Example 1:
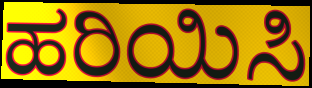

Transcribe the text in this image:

ಹರಿಯಿಸಿ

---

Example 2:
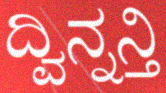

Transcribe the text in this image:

ದ್ವಿನ್ನನ್ತಿ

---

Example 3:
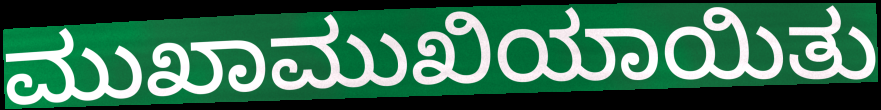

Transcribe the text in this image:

ಮುಖಾಮುಖಿಯಾಯಿತು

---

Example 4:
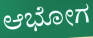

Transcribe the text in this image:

ಆಭೋಗ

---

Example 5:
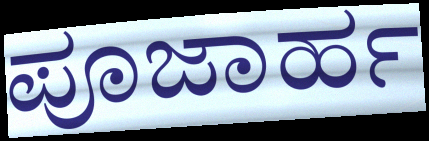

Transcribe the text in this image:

ಪೂಜಾರ್ಹ